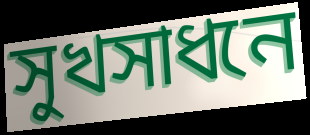
সুখসাধনে